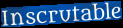
Inscrutable